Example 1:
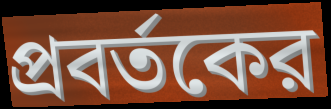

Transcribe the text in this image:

প্রবর্তকের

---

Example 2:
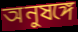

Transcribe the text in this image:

অনুষঙ্গে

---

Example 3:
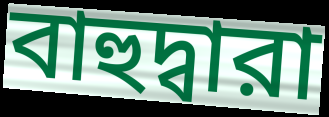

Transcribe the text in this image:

বাহুদ্বারা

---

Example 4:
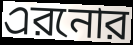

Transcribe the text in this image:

এরনোর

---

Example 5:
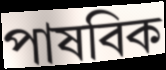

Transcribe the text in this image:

পাষবিক